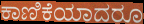
ಕಾಣಿಕೆಯಾದರೂ